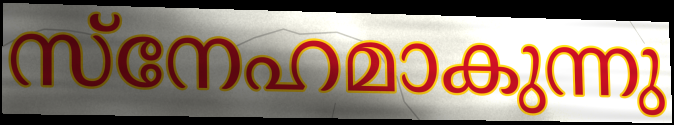
സ്നേഹമാകുന്നു